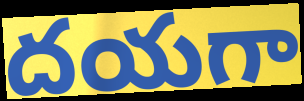
దయగా